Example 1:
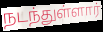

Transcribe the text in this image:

நடந்துள்ளார்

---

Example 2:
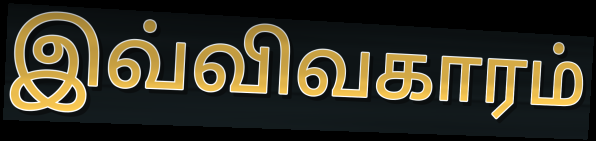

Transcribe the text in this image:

இவ்விவகாரம்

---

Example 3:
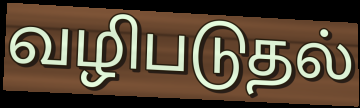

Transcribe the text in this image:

வழிபடுதல்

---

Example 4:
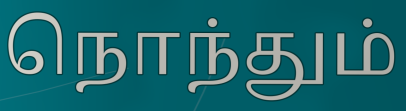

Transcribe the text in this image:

நொந்தும்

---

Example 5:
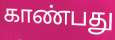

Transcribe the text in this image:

காண்பது